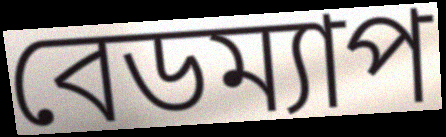
বেডম্যাপ